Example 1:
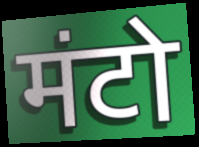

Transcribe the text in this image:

मंटो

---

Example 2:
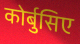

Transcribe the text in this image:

कोर्बुसिए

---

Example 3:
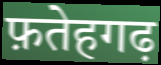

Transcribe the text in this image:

फ़तेहगढ़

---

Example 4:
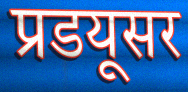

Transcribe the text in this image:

प्रडयूसर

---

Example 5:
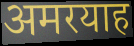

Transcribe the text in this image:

अमरयाह